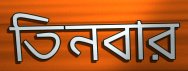
তিনবার